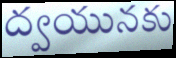
ద్వయునకు